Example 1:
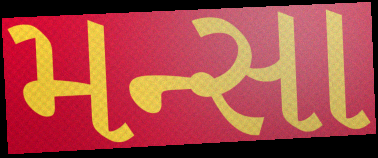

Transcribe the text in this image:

મન્સા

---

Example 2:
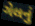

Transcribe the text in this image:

ગેલનું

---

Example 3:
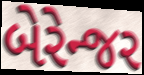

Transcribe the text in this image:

બેરેન્જર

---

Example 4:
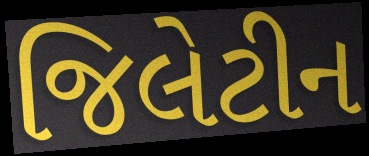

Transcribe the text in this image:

જિલેટીન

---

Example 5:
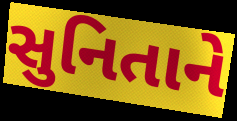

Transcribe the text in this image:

સુનિતાને